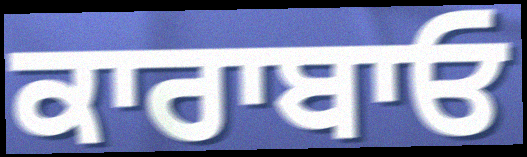
ਕਾਰਾਬਾਓ